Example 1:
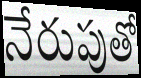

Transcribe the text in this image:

నేరుపుతో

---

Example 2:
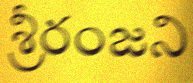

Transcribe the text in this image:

శ్రీరంజని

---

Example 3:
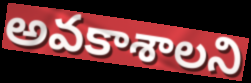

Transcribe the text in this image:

అవకాశాలని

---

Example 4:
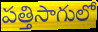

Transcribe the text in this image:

పత్తిసాగులో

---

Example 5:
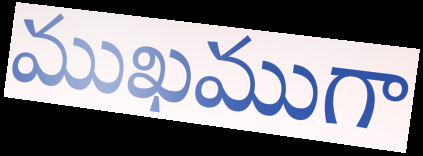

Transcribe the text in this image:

ముఖముగా